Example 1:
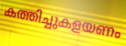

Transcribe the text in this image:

കത്തിച്ചുകളയണം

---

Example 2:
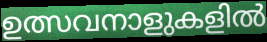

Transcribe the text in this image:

ഉത്സവനാളുകളിൽ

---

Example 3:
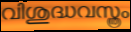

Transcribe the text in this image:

വിശുദ്ധവസ്ത്രം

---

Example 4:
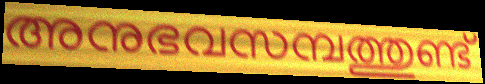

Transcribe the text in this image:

അനുഭവസമ്പത്തുണ്ട്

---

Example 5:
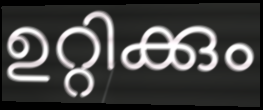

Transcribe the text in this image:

ഉറ്റിക്കും